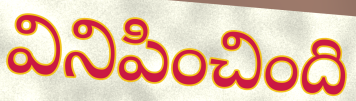
వినిపించింది